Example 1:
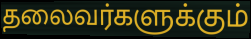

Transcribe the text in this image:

தலைவர்களுக்கும்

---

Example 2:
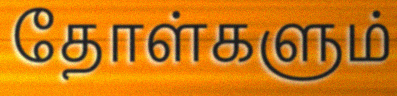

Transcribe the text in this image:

தோள்களும்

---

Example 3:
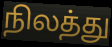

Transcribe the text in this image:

நிலத்து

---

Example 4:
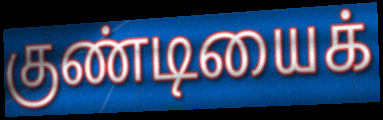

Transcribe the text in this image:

குண்டியைக்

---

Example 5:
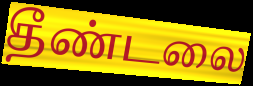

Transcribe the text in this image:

தீண்டலை